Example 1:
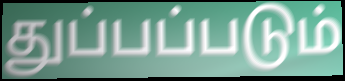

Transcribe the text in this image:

துப்பப்படும்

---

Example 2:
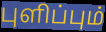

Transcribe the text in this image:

புளிப்பும்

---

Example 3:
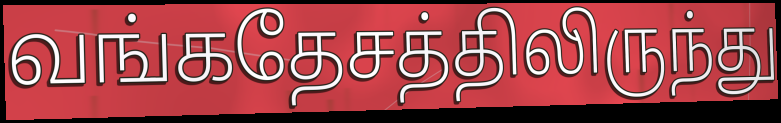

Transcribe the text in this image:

வங்கதேசத்திலிருந்து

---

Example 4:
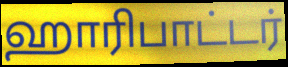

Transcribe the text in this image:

ஹாரிபாட்டர்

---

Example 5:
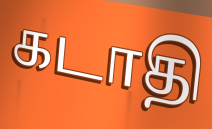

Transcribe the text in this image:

கடாதி